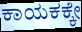
ಕಾಯಕಕ್ಕೇ